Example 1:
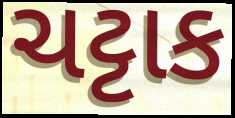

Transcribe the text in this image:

ચટ્ટાક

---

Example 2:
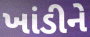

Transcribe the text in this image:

ખાંડીને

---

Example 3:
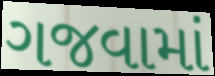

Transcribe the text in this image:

ગજવામાં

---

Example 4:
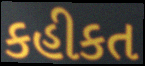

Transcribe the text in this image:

કહીકત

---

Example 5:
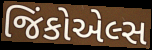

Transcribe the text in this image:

જિંકોએલ્સ